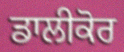
ਡਾਲੀਕੋਰ